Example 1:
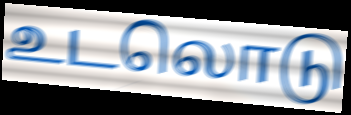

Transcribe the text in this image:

உடலொடு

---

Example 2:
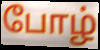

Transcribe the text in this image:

போழ்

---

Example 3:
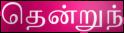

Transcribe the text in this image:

தென்றுந்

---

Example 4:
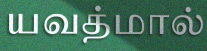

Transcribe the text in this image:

யவத்மால்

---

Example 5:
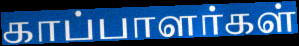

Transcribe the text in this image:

காப்பாளர்கள்